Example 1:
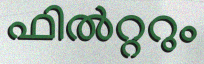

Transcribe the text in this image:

ഫിൽറ്ററും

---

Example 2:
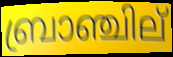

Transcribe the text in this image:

ബ്രാഞ്ചില്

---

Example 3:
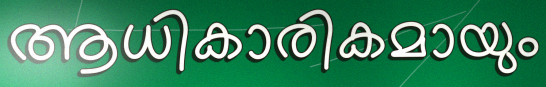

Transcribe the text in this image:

ആധികാരികമായും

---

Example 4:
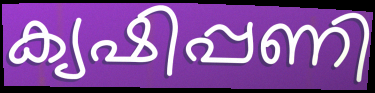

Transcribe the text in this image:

ക്യഷിപ്പണി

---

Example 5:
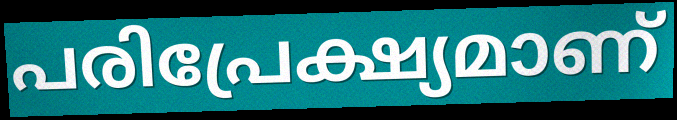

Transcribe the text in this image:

പരിപ്രേക്ഷ്യമാണ്